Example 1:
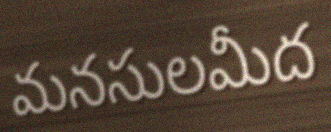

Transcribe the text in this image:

మనసులమీద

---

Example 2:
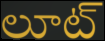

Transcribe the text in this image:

లూట్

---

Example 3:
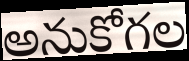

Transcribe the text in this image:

అనుకోగల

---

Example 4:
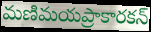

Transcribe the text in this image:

మణిమయప్రాకారకన్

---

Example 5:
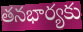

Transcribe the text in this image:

తనభార్యకు